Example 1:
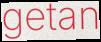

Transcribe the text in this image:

getan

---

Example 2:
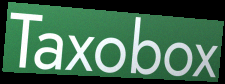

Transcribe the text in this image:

Taxobox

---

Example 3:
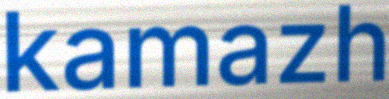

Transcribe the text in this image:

kamazh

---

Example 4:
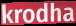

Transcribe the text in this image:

krodha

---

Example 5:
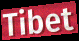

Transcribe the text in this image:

Tibet